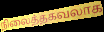
நிலைத்தகவலாக